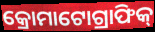
କ୍ରୋମାଟୋଗ୍ରାଫିକ୍